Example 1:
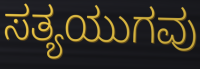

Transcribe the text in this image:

ಸತ್ಯಯುಗವು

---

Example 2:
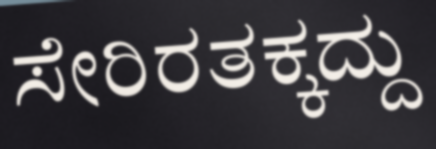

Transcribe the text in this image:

ಸೇರಿರತಕ್ಕದ್ದು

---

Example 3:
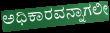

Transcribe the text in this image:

ಅಧಿಕಾರವನ್ನಾಗಲೀ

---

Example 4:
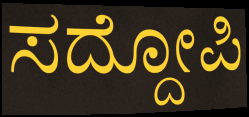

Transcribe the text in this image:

ಸದ್ದೋಪಿ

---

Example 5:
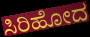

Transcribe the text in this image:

ಸಿರಿಹೋದ